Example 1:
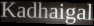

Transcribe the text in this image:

Kadhaigal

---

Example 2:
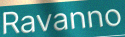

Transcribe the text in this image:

Ravanno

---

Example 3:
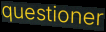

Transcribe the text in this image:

questioner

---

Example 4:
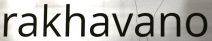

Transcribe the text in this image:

rakhavano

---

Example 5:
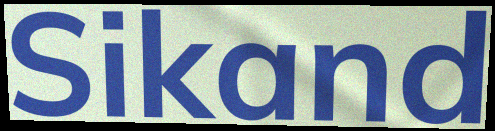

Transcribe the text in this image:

Sikand